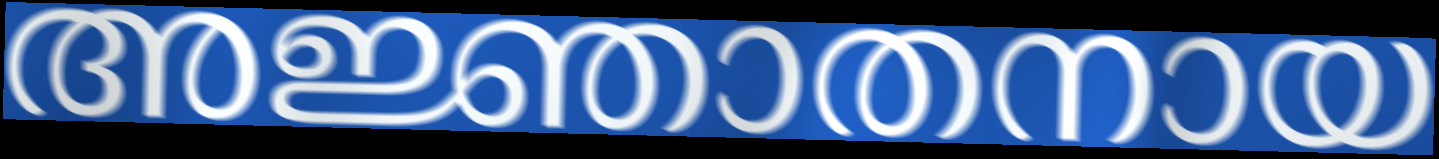
അജ്ഞാതനായ